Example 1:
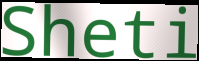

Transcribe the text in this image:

Sheti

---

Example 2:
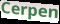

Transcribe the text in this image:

Cerpen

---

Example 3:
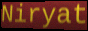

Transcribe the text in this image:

Niryat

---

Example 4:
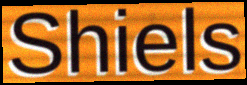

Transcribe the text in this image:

Shiels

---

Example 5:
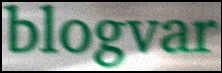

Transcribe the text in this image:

blogvar